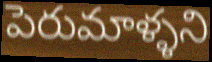
పెరుమాళ్ళని